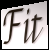
Fit